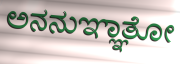
ಅನನುಞ್ಞಾತೋ